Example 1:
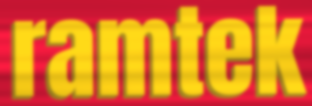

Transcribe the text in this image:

ramtek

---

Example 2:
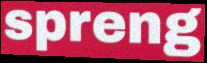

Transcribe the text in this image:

spreng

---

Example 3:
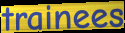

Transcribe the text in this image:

trainees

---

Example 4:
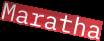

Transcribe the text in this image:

Maratha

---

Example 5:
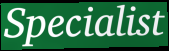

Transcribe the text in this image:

Specialist